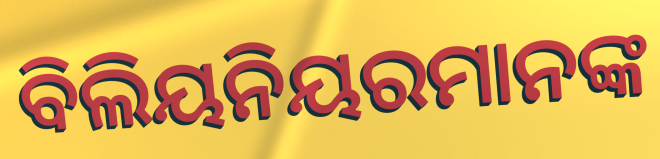
ବିଲିୟନିୟରମାନଙ୍କ